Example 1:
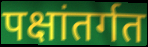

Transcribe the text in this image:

पक्षांतर्गत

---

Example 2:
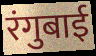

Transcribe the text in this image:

रंगुबाई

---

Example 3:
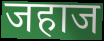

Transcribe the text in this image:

जहाज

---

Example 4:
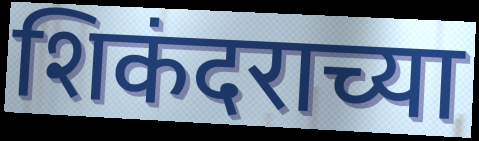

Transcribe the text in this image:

शिकंदराच्या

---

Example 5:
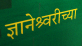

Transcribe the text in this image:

ज्ञानेश्र्वरीच्या